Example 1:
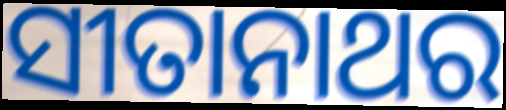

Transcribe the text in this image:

ସୀତାନାଥର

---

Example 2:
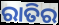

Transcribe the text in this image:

ରାତିର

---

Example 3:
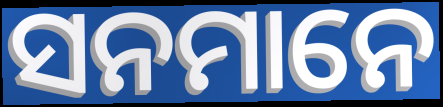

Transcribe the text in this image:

ସନମାନେ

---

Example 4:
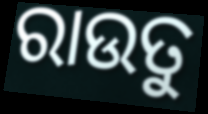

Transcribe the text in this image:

ରାଉତୁ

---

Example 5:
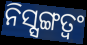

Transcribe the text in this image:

ନିସ୍ସଙ୍ଗତ୍ୱଂ